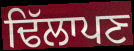
ਢਿੱਲਾਪਣ